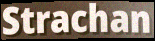
Strachan